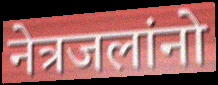
नेत्रजलांनो